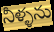
నీళ్ళను